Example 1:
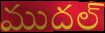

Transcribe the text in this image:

ముదల్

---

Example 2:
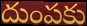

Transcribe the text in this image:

దుంపకు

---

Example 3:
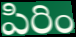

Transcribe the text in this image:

పిరిం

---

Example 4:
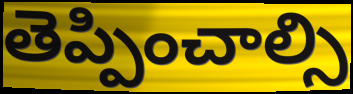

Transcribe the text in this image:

తెప్పించాల్సి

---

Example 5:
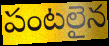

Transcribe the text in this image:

పంటలైన